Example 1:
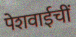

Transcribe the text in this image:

पेशवाईचीं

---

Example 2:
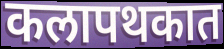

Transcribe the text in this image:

कलापथकात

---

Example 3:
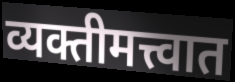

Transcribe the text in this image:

व्यक्तीमत्त्वात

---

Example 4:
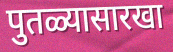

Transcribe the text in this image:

पुतळ्यासारखा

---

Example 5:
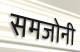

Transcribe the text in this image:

समजोनी